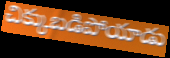
చిక్కుబడిపోయాడు